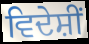
ਵਿਦੇਸ਼ੀਂ